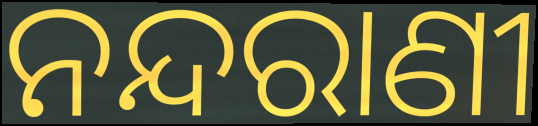
ନନ୍ଦରାଣୀ